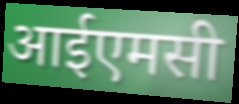
आईएमसी